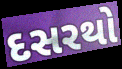
દસરથો